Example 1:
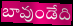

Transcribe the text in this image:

బావుండేది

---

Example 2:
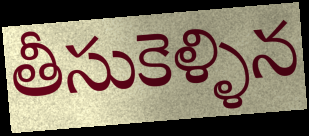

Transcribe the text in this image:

తీసుకెళ్ళిన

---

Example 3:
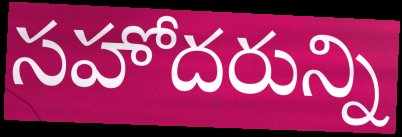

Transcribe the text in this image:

సహోదరున్ని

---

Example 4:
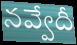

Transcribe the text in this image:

నవ్వేదీ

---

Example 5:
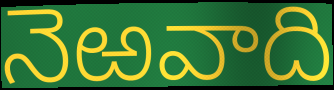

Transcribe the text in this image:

నెఱవాది